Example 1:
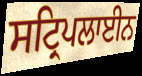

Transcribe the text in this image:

ਸਟ੍ਰਿਪਲਾਈਨ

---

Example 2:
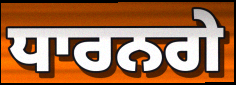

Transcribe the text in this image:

ਧਾਰਨਗੇ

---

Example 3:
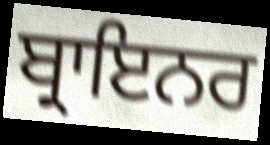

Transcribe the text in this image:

ਬ੍ਰਾਇਨਰ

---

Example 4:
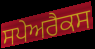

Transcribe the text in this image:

ਸਪੇਅਰੈਕਸ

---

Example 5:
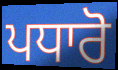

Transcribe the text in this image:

ਪਧਾਰੋ